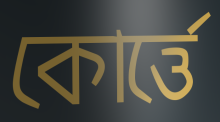
কোর্ত্তে